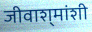
जीवाश्मांशी